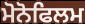
ਮੋਨੋਫਿਲਮ